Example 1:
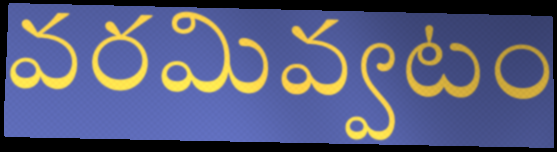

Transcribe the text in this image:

వరమివ్వటం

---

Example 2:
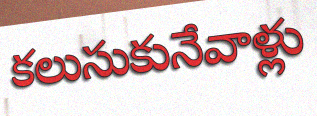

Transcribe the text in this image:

కలుసుకునేవాళ్లు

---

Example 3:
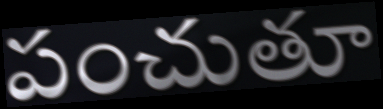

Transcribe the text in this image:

పంచుతూ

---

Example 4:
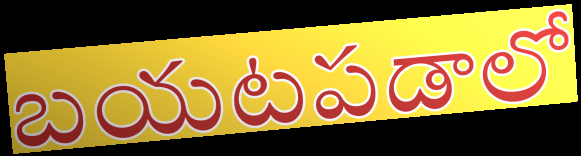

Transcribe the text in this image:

బయటపడాలో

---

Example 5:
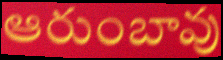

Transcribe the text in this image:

ఆరుంబావు